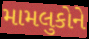
મામલુકોને